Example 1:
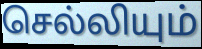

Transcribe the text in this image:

செல்லியும்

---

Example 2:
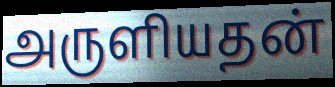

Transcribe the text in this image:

அருளியதன்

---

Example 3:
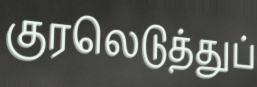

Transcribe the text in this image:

குரலெடுத்துப்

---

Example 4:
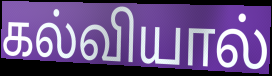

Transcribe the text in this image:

கல்வியால்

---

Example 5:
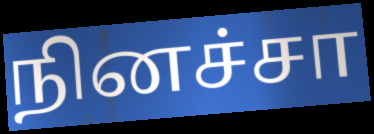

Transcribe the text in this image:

நினச்சா